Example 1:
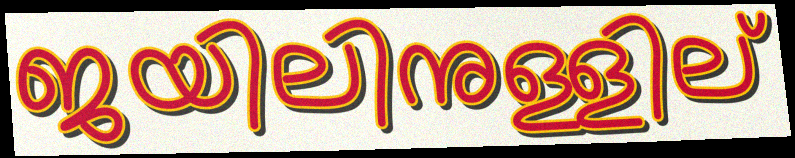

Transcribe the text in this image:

ജയിലിനുള്ളില്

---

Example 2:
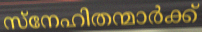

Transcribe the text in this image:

സ്നേഹിതന്മാർക്ക്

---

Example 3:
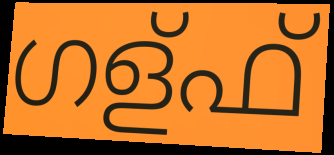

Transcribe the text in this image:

ഗള്ഫ്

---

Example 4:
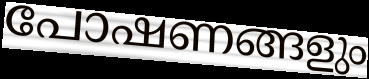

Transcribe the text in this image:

പോഷണങ്ങളും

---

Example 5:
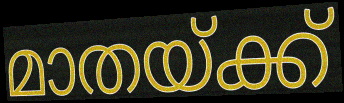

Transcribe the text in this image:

മാതയ്ക്ക്